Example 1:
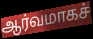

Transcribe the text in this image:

ஆர்வமாகச்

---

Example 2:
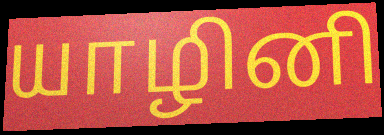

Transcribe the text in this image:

யாழினி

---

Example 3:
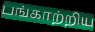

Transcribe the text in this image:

பங்காற்றிய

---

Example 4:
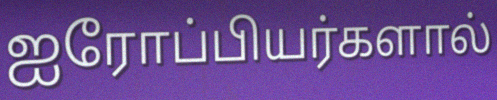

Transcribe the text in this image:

ஐரோப்பியர்களால்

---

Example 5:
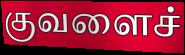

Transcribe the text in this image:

குவளைச்